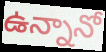
ఉన్నానో